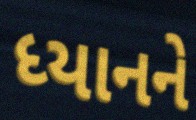
ધ્યાનને